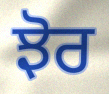
ਝੋਰ